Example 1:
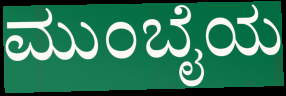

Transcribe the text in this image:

ಮುಂಬೈಯ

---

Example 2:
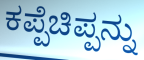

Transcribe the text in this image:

ಕಪ್ಪೆಚಿಪ್ಪನ್ನು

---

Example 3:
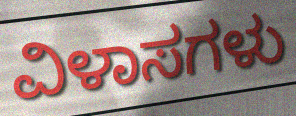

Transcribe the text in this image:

ವಿಳಾಸಗಳು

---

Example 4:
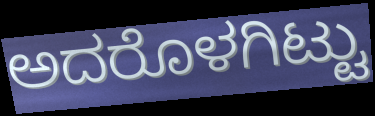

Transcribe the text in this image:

ಅದರೊಳಗಿಟ್ಟು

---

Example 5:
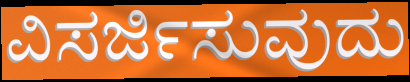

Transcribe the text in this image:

ವಿಸರ್ಜಿಸುವುದು